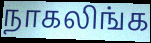
நாகலிங்க